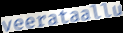
veerataallu